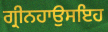
ਗ੍ਰੀਨਹਾਉਸਇਹ